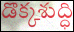
డొక్కశుద్ధి